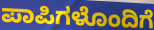
ಪಾಪಿಗಳೊಂದಿಗೆ